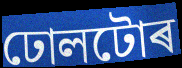
ঢোলটোৰ